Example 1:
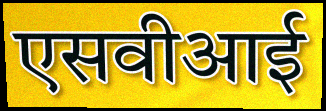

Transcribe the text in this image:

एसवीआई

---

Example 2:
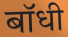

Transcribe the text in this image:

बॉधी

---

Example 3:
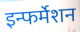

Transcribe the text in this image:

इन्फर्मेशन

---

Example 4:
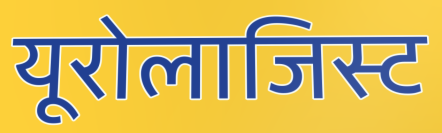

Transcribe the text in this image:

यूरोलाजिस्ट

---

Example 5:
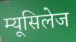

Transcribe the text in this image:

म्यूसिलेज